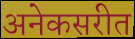
अनेकसरीत